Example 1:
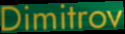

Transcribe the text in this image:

Dimitrov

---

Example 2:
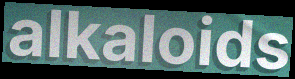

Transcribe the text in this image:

alkaloids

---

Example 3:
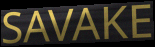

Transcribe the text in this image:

SAVAKE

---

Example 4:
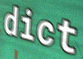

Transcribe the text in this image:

dict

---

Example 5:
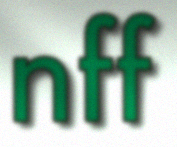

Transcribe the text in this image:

nff